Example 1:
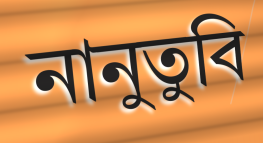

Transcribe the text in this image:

নানুতুবি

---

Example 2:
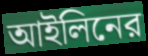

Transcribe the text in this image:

আইলিনের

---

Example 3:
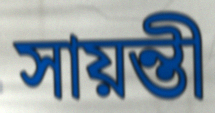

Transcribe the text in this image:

সায়ন্তী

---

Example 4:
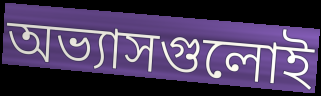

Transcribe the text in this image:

অভ্যাসগুলোই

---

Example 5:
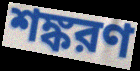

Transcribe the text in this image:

শঙ্করণ